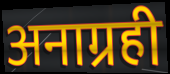
अनाग्रही